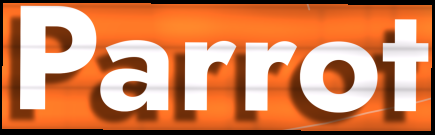
Parrot